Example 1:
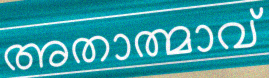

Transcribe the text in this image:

അതാത്മാവ്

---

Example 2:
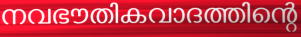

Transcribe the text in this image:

നവഭൗതികവാദത്തിന്റെ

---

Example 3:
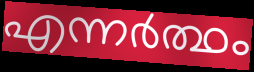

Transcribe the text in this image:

എന്നർത്ഥം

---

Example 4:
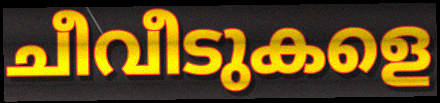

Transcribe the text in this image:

ചീവീടുകളെ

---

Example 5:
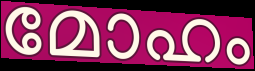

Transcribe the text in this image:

മോഹം